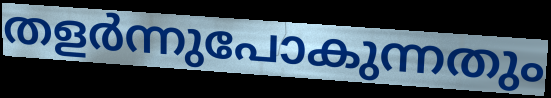
തളർന്നുപോകുന്നതും